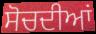
ਸੋਚਦੀਆਂ